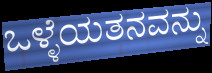
ಒಳ್ಳೆಯತನವನ್ನು